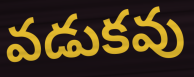
వడుకవు